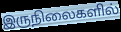
இருநிலைகளில்